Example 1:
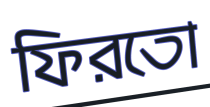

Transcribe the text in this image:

ফিরতো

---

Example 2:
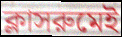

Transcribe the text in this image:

ক্লাসরুমেই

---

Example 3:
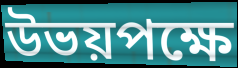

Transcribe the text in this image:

উভয়পক্ষে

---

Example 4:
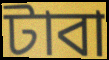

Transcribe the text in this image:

টাবা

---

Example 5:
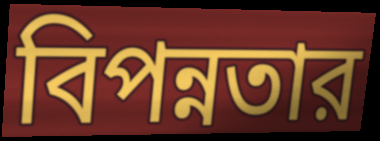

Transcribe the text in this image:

বিপন্নতার